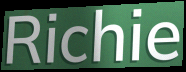
Richie